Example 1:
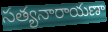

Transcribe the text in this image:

సత్యనారాయణా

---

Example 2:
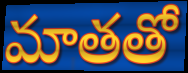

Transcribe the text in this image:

మాతతో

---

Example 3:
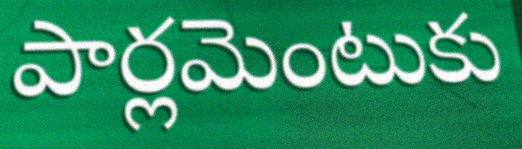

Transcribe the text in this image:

పార్లమెంటుకు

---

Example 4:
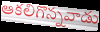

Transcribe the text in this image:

ఆకలిగొన్నవాడు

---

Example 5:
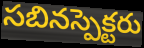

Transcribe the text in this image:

సబినస్పెక్టరు